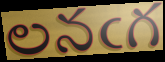
లనఁగ